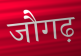
जौगढ़